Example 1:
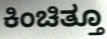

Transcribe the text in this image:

ಕಿಂಚಿತ್ತೂ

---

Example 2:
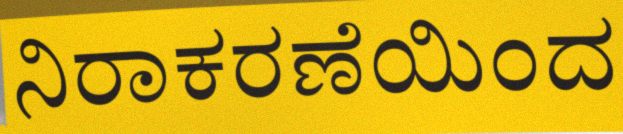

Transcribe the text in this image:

ನಿರಾಕರಣೆಯಿಂದ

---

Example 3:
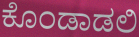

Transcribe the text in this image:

ಕೊಂಡಾಡಲಿ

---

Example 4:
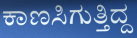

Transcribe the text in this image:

ಕಾಣಸಿಗುತ್ತಿದ್ದ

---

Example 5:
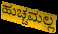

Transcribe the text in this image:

ಹುಚ್ಚಮಲ್ಲ